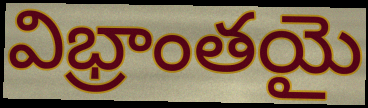
విభ్రాంతయై